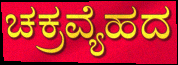
ಚಕ್ರವ್ಯೆಹದ